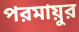
পরমায়ুর